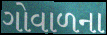
ગોવાળના